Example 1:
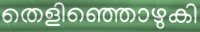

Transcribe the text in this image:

തെളിഞ്ഞൊഴുകി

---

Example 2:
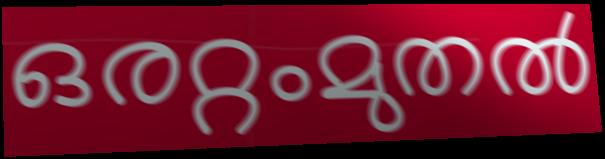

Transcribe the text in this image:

ഒരറ്റംമുതൽ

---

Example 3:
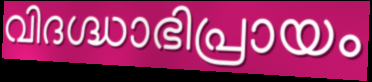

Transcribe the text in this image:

വിദഗ്ദ്ധാഭിപ്രായം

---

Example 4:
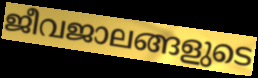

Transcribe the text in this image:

ജീവജാലങ്ങളുടെ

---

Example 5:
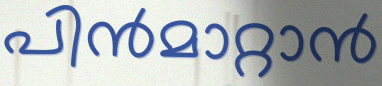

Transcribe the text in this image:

പിൻമാറ്റാൻ